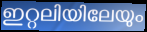
ഇറ്റലിയിലേയും